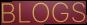
BLOGS